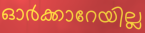
ഓർക്കാറേയില്ല